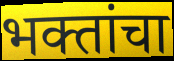
भक्तांचा